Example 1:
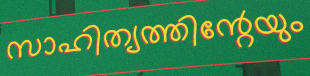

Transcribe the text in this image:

സാഹിത്യത്തിന്റേയും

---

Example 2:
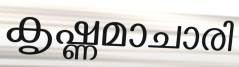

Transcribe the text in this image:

കൃഷ്ണമാചാരി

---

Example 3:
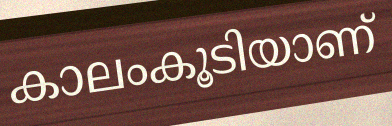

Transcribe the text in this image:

കാലംകൂടിയാണ്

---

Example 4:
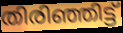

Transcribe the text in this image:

തിരിഞ്ഞിട്ട്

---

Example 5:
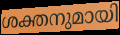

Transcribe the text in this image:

ശക്തനുമായി